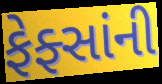
ફેફ્સાંની